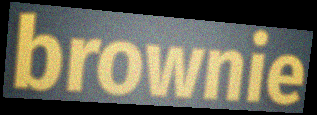
brownie